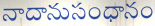
నాదానుసంధానం